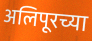
अलिपूरच्या